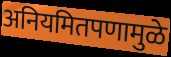
अनियमितपणामुळे